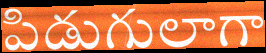
పిడుగులాగా